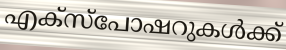
എക്സ്പോഷറുകൾക്ക്